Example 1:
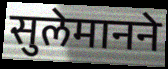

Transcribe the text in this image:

सुलेमानने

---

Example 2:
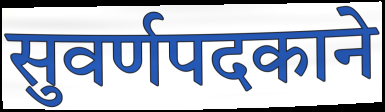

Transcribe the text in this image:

सुवर्णपदकाने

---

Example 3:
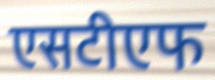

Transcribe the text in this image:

एसटीएफ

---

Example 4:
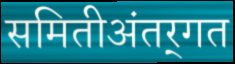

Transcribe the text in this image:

समितीअंतर्गत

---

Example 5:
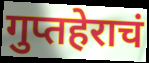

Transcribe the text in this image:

गुप्तहेराचं